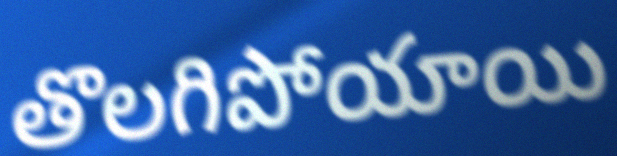
తొలగిపోయాయి